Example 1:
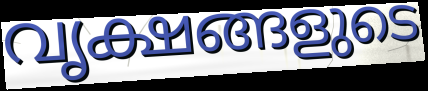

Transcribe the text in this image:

വൃക്ഷങ്ങളുടെ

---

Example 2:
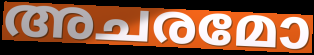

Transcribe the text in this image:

അചരമോ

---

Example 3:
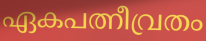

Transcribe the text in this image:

ഏകപത്നീവ്രതം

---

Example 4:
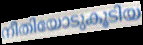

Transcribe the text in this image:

നീതിയോടുകൂടിയ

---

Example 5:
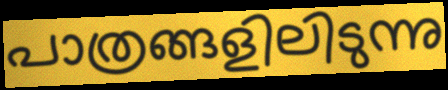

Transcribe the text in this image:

പാത്രങ്ങളിലിടുന്നു